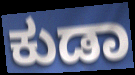
ಕುಡಾ